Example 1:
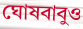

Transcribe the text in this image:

ঘোষবাবুও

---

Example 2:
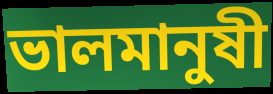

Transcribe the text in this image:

ভালমানুষী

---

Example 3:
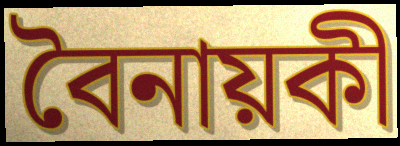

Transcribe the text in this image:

বৈনায়কী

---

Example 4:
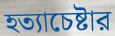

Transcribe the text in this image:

হত্যাচেষ্টার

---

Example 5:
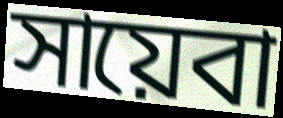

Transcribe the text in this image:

সায়েবা